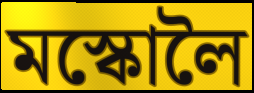
মস্কোলৈ